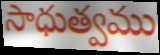
సాధుత్వము